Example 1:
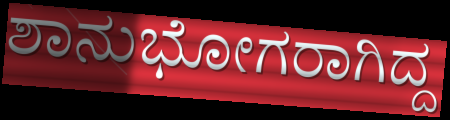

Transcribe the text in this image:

ಶಾನುಭೋಗರಾಗಿದ್ದ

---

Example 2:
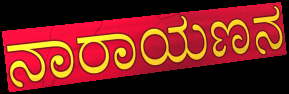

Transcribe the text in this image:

ನಾರಾಯಣನ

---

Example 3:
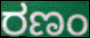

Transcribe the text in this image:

ರಣಂ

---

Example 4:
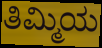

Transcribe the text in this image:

ತಿಮ್ಮಿಯ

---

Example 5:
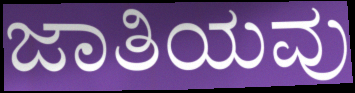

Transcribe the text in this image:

ಜಾತಿಯವು